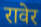
रावेर